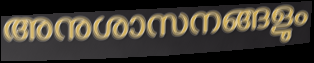
അനുശാസനങ്ങളും